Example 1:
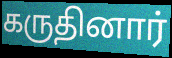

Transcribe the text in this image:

கருதினார்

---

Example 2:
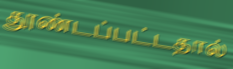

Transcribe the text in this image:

தூண்டப்பட்டதால்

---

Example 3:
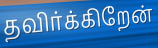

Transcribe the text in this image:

தவிர்க்கிறேன்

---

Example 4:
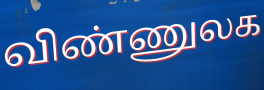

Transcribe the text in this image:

விண்ணுலக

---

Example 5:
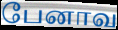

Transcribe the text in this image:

பேனாவ